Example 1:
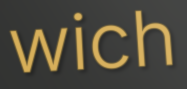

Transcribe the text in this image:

wich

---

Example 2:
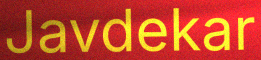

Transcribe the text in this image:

Javdekar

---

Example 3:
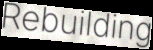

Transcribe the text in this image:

Rebuilding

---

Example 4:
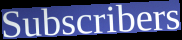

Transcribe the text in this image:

Subscribers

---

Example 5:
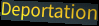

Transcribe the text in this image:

Deportation